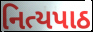
નિત્યપાઠ